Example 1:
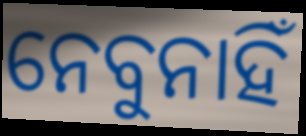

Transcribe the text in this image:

ନେବୁନାହିଁ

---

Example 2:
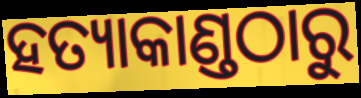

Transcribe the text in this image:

ହତ୍ୟାକାଣ୍ଡଠାରୁ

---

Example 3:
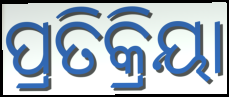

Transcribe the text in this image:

ପ୍ରତିକ୍ରିୟା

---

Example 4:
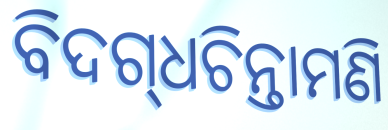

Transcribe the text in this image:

ବିଦଗ୍‌ଧଚିନ୍ତାମଣି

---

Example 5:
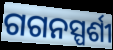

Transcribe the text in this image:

ଗଗନସ୍ପର୍ଶୀ